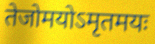
तेजोमयोऽमृतमयः